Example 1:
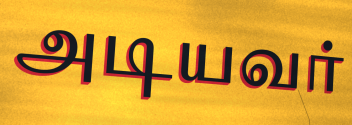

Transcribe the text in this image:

அடியவர்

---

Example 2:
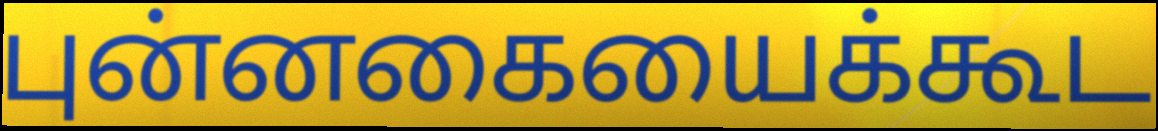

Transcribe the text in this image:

புன்னகையைக்கூட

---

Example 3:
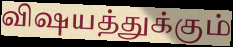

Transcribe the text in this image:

விஷயத்துக்கும்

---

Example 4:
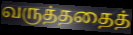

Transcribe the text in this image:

வருத்ததைத்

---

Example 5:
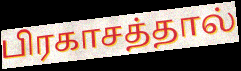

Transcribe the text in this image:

பிரகாசத்தால்